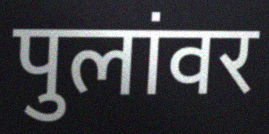
पुलांवर